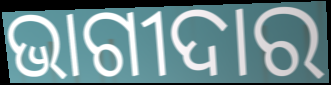
ଭାଗୀଦାର